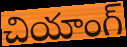
చియాంగ్